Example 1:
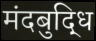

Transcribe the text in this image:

मंदबुद्धि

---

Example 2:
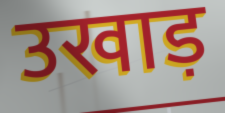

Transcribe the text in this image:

उखाड़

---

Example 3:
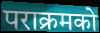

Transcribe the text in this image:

पराक्रमको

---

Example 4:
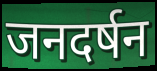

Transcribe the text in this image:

जनदर्षन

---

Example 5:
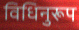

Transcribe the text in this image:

विधिनुरूप